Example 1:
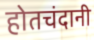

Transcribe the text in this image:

होतचंदानी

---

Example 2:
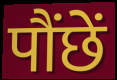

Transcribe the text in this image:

पौंछें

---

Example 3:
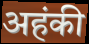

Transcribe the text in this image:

अहंकी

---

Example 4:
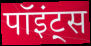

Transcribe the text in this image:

पॉइंट्स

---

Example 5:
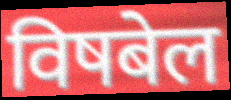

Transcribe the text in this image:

विषबेल